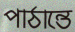
পাঠান্তে